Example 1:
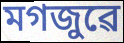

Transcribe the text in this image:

মগজুৱে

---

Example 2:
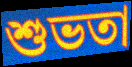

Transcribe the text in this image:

শুভতা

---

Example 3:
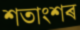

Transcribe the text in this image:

শতাংশৰ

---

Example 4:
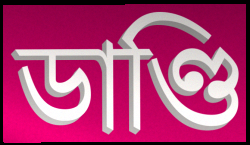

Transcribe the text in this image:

ডাণ্ডি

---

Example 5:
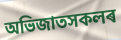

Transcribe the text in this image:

অভিজাতসকলৰ